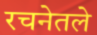
रचनेतले